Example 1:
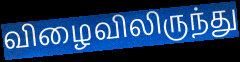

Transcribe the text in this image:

விழைவிலிருந்து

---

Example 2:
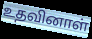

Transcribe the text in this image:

உதவினாள்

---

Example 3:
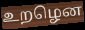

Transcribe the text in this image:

உறழென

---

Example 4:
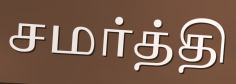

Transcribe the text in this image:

சமர்த்தி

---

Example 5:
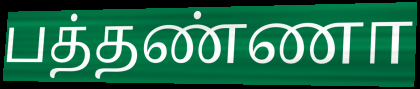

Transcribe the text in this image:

பத்தண்ணா